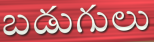
బడుగులు